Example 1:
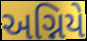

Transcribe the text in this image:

અગ્નિયે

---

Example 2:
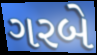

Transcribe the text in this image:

ગરબે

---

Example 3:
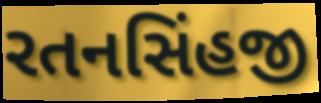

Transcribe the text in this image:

રતનસિંહજી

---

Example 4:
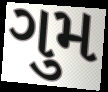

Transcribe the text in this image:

ગુમ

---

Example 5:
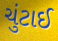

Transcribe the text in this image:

ચુંટાઈ